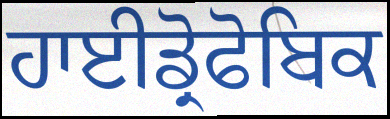
ਹਾਈਡ੍ਰੋਫੋਬਿਕ